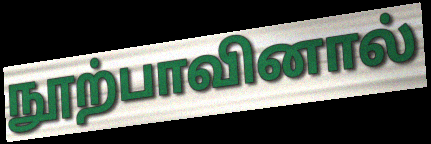
நூற்பாவினால்